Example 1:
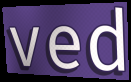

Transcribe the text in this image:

ved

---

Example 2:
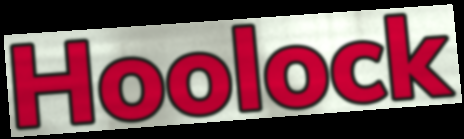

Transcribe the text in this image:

Hoolock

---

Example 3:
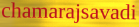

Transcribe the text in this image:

chamarajsavadi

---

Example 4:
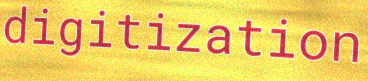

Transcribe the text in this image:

digitization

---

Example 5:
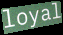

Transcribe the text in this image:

loyal